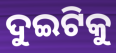
ଦୁଇଟିକୁ